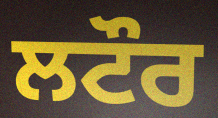
ਲਟੌਰ